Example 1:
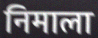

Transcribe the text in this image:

निमाला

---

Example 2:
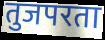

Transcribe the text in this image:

तुजपरता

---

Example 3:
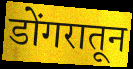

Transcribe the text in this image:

डोंगरातून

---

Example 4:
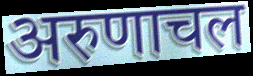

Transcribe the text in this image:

अरुणाचल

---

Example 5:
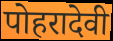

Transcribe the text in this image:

पोहरादेवी